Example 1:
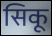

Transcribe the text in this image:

सिकू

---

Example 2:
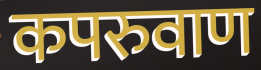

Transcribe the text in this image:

कपरुवाण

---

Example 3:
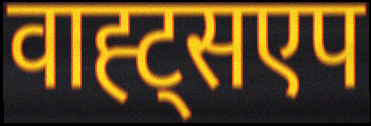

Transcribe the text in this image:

वाह्ट्सएप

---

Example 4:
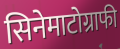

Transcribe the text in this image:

सिनेमाटोग्राफी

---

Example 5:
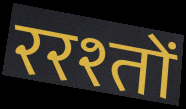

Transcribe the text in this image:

ररश्तों